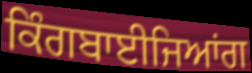
ਕਿੰਗਬਾਈਜਿਆਂਗ